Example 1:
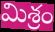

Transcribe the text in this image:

మిశ్రం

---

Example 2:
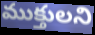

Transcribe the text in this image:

ముక్తులని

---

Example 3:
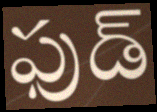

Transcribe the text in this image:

ఫుడ్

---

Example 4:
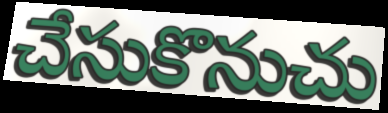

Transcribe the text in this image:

చేసుకొనుచు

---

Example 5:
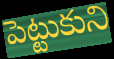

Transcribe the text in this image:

పెట్టుకుని